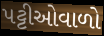
પટ્ટીઓવાળો